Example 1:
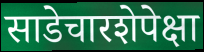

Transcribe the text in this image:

साडेचारशेपेक्षा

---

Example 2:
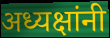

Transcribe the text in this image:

अध्यक्षांनी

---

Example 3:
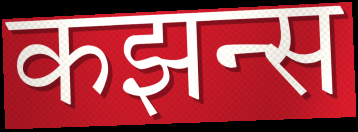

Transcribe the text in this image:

कझन्स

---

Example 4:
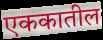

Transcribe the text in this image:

एककातील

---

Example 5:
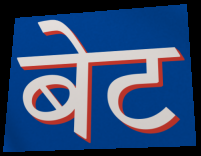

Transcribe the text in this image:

बेट